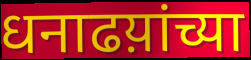
धनाढय़ांच्या